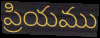
ప్రియము